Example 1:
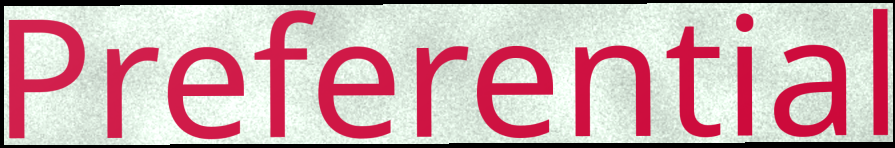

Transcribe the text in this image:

Preferential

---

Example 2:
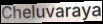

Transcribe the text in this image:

Cheluvaraya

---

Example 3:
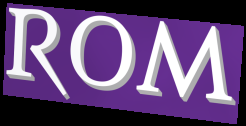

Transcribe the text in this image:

ROM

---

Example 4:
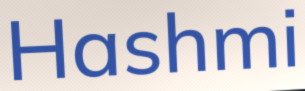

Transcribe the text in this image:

Hashmi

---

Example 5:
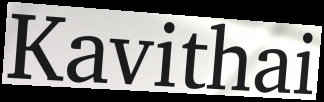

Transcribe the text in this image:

Kavithai